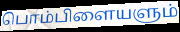
பொம்பிளையளும்